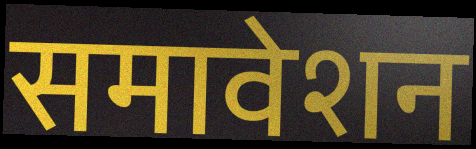
समावेशन